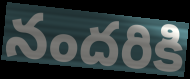
నందరికి